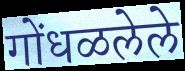
गोंधळलेले